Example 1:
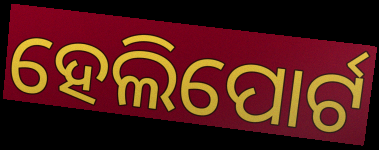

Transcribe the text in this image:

ହେଲିପୋର୍ଟ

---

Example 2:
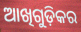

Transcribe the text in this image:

ଆଖିଗୁଡ଼ିକର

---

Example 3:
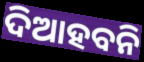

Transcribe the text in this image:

ଦିଆହବନି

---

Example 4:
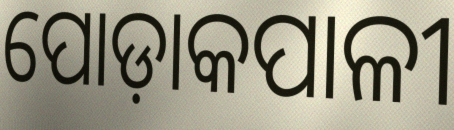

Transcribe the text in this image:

ପୋଡ଼ାକପାଳୀ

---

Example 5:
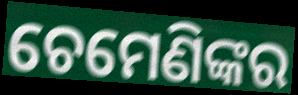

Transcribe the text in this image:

ଚେମେଣିଙ୍କର